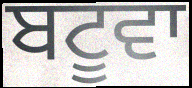
ਬਟੂਵਾ